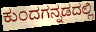
ಕುಂದಗನ್ನಡದಲ್ಲಿ